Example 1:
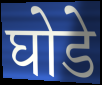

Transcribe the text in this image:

घोडे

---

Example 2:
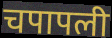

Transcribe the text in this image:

चपापली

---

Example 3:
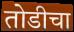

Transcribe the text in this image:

तोडीचा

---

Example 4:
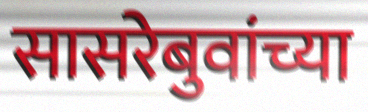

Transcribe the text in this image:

सासरेबुवांच्या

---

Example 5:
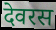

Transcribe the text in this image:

देवरस